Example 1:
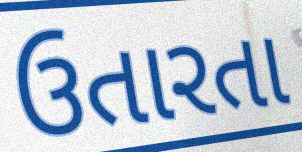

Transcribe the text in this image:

ઉતારતા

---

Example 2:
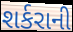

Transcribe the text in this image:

શર્કરાની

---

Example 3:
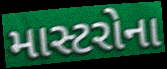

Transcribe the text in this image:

માસ્ટરોના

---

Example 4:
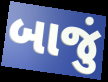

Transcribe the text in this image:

બાજું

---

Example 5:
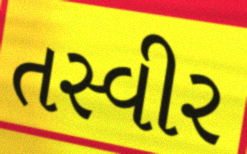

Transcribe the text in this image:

તસ્વીર